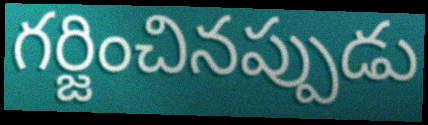
గర్జించినప్పుడు